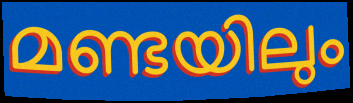
മണ്ടയിലും